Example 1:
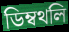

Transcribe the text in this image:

ডিম্বথলি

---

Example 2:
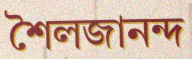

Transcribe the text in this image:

শৈলজানন্দ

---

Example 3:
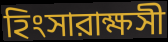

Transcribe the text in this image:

হিংসারাক্ষসী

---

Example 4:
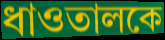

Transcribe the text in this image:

ধাওতালকে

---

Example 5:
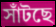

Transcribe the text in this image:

সাঁটছে